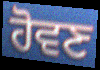
ਹੋਵਣ